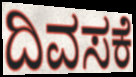
ದಿವಸಕೆ